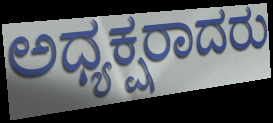
ಅಧ್ಯಕ್ಷರಾದರು